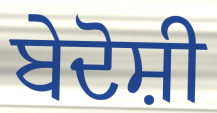
ਬੇਦੋਸ਼ੀ